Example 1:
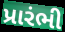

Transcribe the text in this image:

પ્રારંભી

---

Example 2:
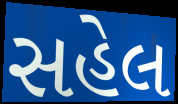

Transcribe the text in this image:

સહેલ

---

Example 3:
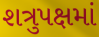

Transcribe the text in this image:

શત્રુપક્ષમાં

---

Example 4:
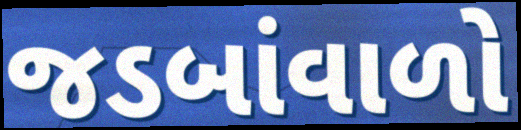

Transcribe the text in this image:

જડબાંવાળો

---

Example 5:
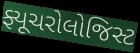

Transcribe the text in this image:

ફ્યૂચરોલોજિસ્ટ